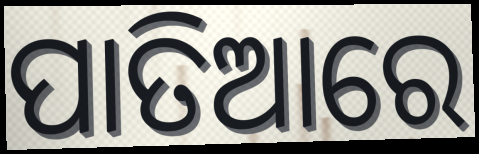
ପାତିଆରେ